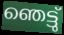
ഞെട്ടു്